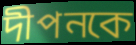
দীপনকে